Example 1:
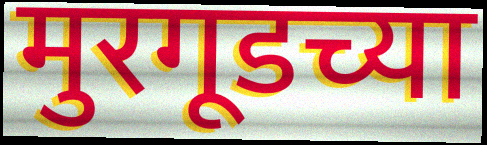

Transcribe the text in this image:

मुरगूडच्या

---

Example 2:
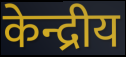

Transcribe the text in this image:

केन्द्रीय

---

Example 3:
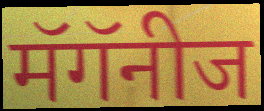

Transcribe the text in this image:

मॅगॅनीज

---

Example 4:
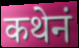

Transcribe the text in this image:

कथेनं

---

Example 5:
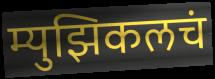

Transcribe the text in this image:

म्युझिकलचं